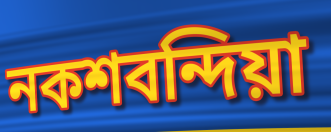
নকশবন্দিয়া